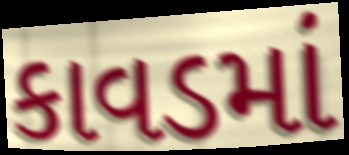
કાવડમાં